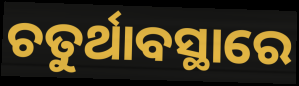
ଚତୁର୍ଥାବସ୍ଥାରେ